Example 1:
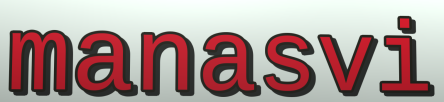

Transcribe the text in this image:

manasvi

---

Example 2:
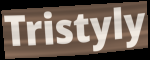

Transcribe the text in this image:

Tristyly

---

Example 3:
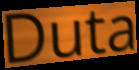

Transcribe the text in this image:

Duta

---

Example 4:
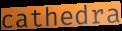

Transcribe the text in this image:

cathedra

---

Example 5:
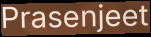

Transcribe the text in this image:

Prasenjeet